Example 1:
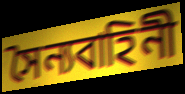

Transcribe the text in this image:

সৈন্যবাহিনী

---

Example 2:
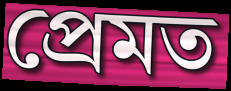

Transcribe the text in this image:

প্ৰেমত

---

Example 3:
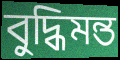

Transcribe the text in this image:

বুদ্ধিমন্ত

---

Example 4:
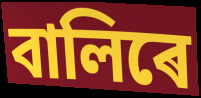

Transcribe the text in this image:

বালিৰে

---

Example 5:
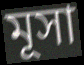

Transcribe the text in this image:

মূসা